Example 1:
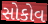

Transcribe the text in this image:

સોકોવ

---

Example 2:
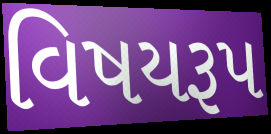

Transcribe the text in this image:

વિષયરૂપ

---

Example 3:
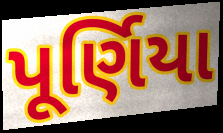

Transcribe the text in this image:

પૂર્ણિયા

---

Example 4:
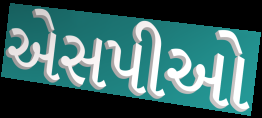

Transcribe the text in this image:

એસપીઓ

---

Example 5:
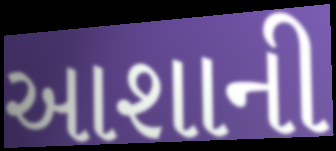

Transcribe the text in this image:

આશાની